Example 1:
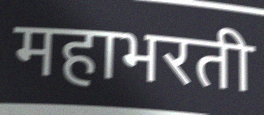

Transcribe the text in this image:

महाभरती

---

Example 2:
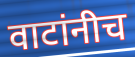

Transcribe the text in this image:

वाटांनीच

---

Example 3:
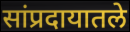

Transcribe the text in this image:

सांप्रदायातले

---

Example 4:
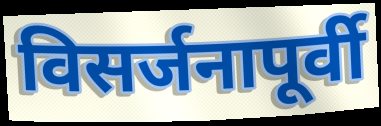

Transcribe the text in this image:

विसर्जनापूर्वी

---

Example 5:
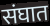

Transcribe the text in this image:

संघात